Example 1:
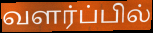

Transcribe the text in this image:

வளர்ப்பில்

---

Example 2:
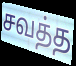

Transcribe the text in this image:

சவத்த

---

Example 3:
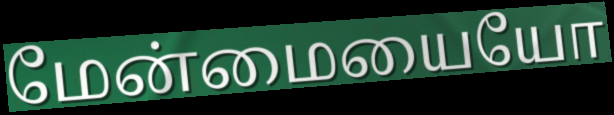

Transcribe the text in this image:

மேன்மையையோ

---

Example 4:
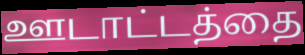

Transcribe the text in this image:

ஊடாட்டத்தை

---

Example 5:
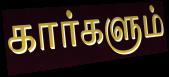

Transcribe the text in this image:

கார்களும்